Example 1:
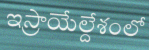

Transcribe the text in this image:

ఇస్రాయేల్దేశంలో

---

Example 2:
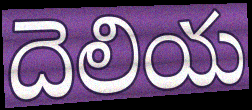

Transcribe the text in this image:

దెలియ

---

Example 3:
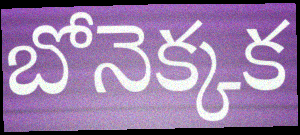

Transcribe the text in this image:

బోనెక్కక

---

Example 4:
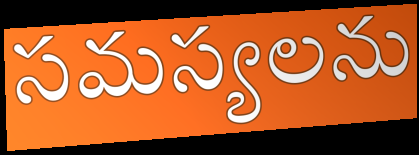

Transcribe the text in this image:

సమస్యలను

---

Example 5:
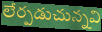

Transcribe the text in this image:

లేర్పడుచున్నవి